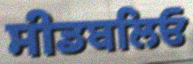
ਸੀਡਬਲਿਓ